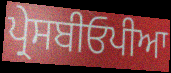
ਪ੍ਰੇਸਬੀਓਪੀਆ